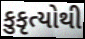
કુકૃત્યોથી